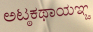
ಅಟ್ಠಕಥಾಯಞ್ಚ